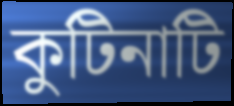
কুটিনাটি